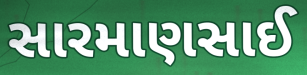
સારમાણસાઈ